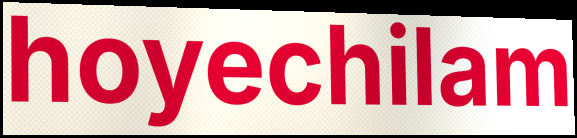
hoyechilam